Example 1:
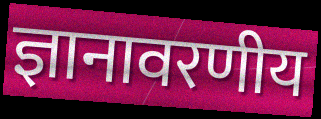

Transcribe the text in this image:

ज्ञानावरणीय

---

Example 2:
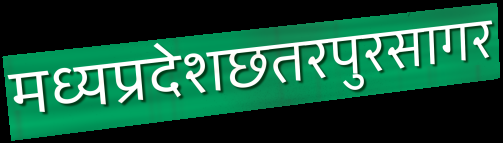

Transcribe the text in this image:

मध्यप्रदेशछतरपुरसागर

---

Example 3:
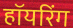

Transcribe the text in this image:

हॉयरिंग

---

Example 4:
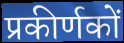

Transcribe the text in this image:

प्रकीर्णकों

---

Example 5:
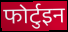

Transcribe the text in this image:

फोर्टुइन